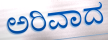
ಅರಿವಾದ